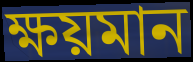
ক্ষয়মান